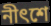
নীৎশে